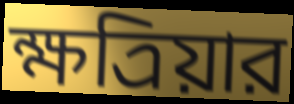
ক্ষত্রিয়ার